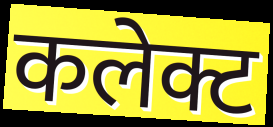
कलेक्ट